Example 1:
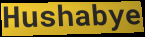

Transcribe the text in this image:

Hushabye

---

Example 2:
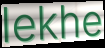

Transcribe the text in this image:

lekhe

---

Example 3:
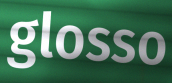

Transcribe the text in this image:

glosso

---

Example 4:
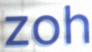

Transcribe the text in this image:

zoh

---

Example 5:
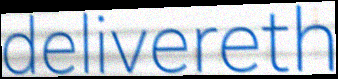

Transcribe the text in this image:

delivereth